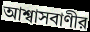
আশ্বাসবাণীর